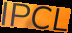
IPCL